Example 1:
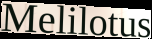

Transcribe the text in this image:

Melilotus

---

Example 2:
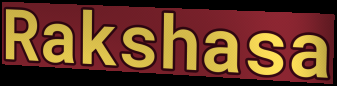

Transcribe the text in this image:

Rakshasa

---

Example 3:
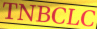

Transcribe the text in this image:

TNBCLC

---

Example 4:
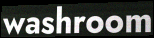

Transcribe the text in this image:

washroom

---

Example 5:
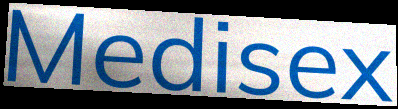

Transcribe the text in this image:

Medisex